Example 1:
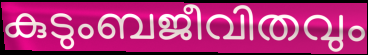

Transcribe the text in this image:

കുടുംബജീവിതവും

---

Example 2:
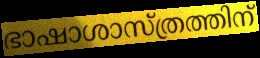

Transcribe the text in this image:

ഭാഷാശാസ്ത്രത്തിന്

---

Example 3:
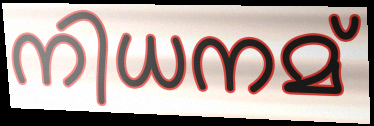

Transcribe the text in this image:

നിധനമ്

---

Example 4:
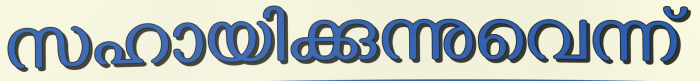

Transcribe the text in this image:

സഹായിക്കുന്നുവെന്ന്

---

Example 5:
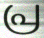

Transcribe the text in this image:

പ്ര